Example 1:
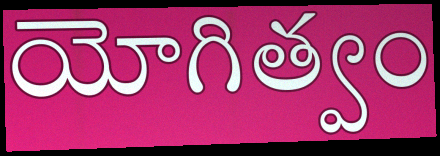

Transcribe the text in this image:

యోగిత్వం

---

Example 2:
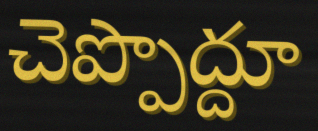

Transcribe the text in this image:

చెప్పొద్దూ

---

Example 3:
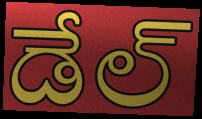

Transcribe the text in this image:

డేల్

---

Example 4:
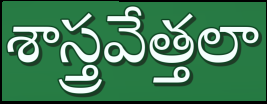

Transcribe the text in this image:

శాస్త్రవేత్తలా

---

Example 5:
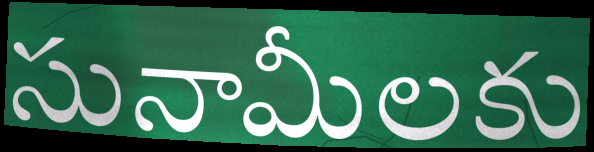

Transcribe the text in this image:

సునామీలకు